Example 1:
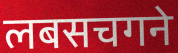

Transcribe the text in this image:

लबसचगने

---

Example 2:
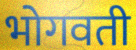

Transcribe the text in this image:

भोगवती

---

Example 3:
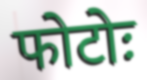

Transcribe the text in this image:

फोटोः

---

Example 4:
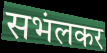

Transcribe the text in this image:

सभंलकर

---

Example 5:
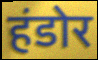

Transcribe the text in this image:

हंडोर